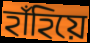
হাঁহিয়ে